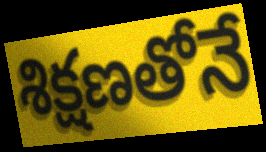
శిక్షణతోనే